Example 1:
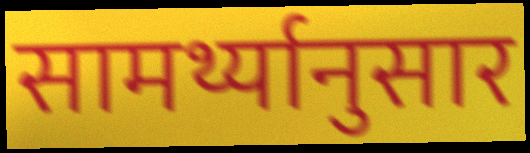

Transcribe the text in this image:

सामर्थ्यानुसार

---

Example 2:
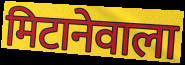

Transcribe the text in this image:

मिटानेवाला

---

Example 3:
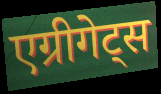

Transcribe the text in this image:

एग्रीगेट्स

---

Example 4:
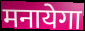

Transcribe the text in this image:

मनायेगा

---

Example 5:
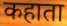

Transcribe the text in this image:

कहाता